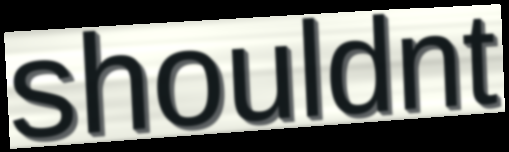
shouldnt